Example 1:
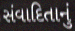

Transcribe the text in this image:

સંવાદિતાનું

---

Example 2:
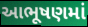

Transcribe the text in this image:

આભૂષણમાં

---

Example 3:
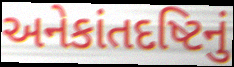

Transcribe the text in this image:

અનેકાંતદષ્ટિનું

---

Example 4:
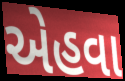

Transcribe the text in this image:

એહવા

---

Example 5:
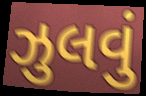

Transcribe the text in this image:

ઝુલવું